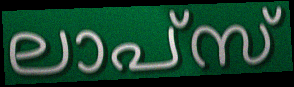
ലാപ്സ്